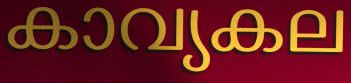
കാവ്യകല